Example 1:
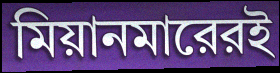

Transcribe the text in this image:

মিয়ানমারেরই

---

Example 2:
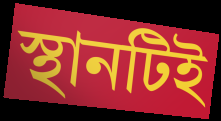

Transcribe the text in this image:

স্থানটিই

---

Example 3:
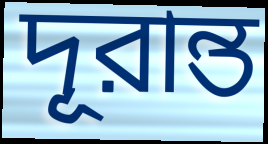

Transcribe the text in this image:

দূরান্ত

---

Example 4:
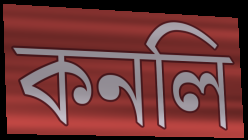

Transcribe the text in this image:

কনলি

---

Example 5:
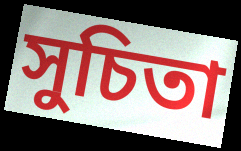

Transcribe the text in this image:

সুচিতা